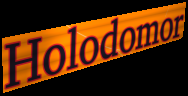
Holodomor